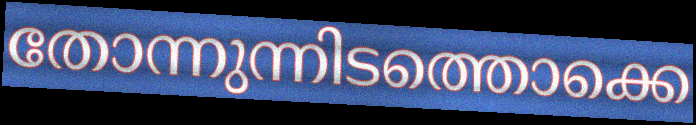
തോന്നുന്നിടത്തൊക്കെ